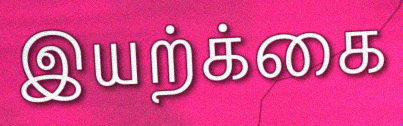
இயற்க்கை